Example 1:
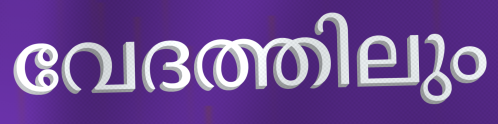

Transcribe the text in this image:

വേദത്തിലും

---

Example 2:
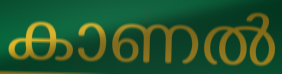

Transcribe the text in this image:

കാണൽ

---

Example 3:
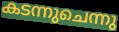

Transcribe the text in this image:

കടന്നുചെന്നു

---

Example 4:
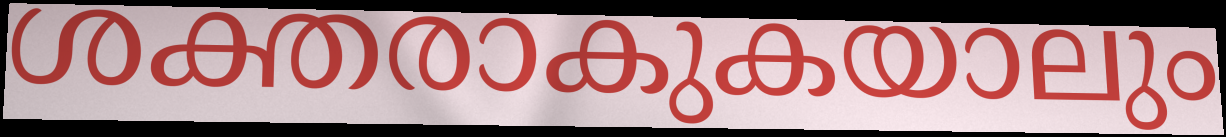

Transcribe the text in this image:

ശക്തരാകുകയാലും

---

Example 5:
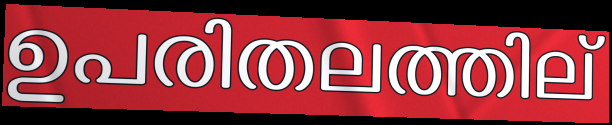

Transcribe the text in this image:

ഉപരിതലത്തില്